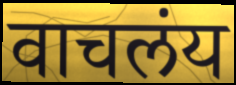
वाचलंय